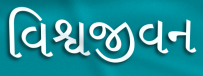
વિશ્વજીવન